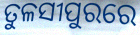
ତୁଳସୀପୁରରେ